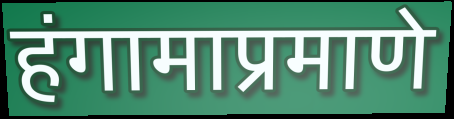
हंगामाप्रमाणे